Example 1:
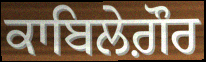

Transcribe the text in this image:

ਕਾਬਿਲੇਗ਼ੌਰ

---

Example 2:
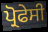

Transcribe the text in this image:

ਪ੍ਰੋਫੇਸੀ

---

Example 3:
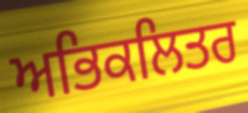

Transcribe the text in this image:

ਅਭਿਕਲਿਤਰ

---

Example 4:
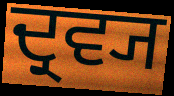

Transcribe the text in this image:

ਦ੍ਰਵ੍ਯ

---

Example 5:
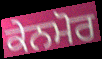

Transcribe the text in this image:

ਕੇਨਮੋਰ